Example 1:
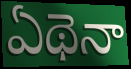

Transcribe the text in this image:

ఏథెనా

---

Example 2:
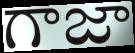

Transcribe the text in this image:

గాజా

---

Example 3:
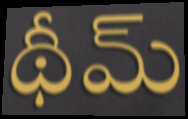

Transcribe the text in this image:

థీమ్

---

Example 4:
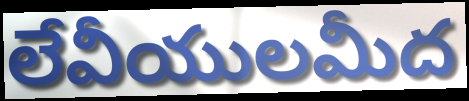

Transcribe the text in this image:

లేవీయులమీద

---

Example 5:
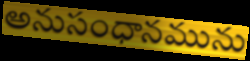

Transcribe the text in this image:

అనుసంధానమును